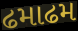
ઢમાઢમ